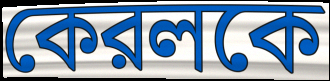
কেরলকে